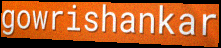
gowrishankar